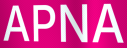
APNA